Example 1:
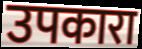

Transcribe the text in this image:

उपकारा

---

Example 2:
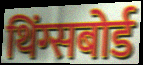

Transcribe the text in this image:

थिंग्सबोर्ड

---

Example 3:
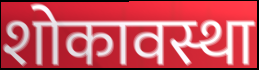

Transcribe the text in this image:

शोकावस्था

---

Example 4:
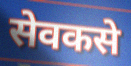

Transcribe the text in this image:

सेवकसे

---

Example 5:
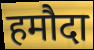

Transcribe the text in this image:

हमौदा